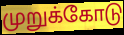
முறுக்கோடு